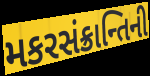
મકરસંક્રાન્તિની